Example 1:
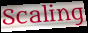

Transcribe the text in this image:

Scaling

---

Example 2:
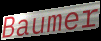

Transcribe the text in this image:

Baumer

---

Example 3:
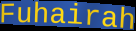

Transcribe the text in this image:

Fuhairah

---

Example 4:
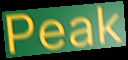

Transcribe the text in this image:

Peak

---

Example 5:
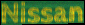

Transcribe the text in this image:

Nissan